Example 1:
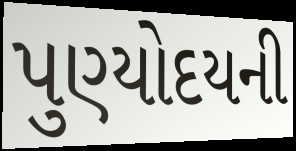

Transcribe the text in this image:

પુણ્યોદયની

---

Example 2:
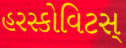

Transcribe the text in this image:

હરસ્કોવિટસ્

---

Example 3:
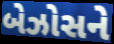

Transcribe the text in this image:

બેઝોસને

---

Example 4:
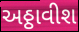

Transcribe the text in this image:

અઠ્ઠાવીશ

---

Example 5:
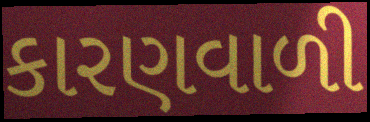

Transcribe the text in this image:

કારણવાળી